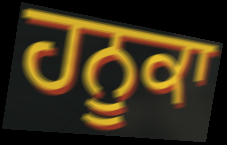
ਹਨੂਕਾ